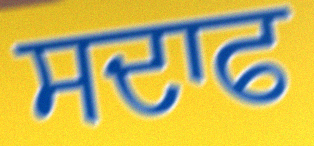
ਸਦਾਫ